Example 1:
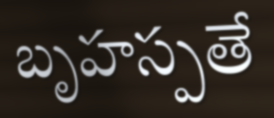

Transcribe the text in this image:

బృహస్పతే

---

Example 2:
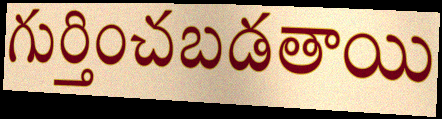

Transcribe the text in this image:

గుర్తించబడతాయి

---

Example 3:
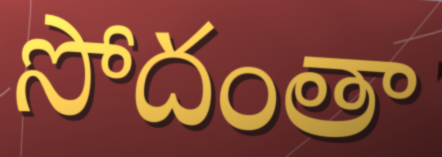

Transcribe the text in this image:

సోదంతా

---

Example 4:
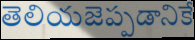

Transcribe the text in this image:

తెలియజెప్పడానికే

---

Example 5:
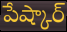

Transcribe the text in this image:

పేష్కార్